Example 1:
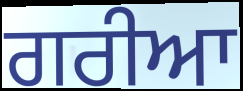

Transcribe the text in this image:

ਗਰੀਆ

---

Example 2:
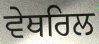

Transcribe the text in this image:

ਵੇਥਰਿਲ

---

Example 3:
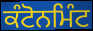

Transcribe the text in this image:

ਕੰਟੋਨਮਿੰਟ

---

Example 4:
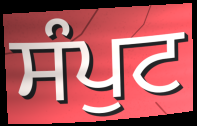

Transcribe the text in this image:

ਸੰਪੁਟ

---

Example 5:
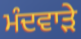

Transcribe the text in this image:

ਮੰਦਵਾੜੇ